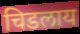
चिडलाय